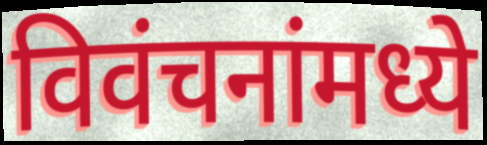
विवंचनांमध्ये